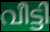
വീട്ടി